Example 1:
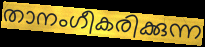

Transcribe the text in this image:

താനംഗീകരിക്കുന്ന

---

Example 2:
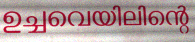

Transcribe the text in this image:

ഉച്ചവെയിലിന്റെ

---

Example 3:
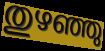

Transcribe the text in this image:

തുഴഞ്ഞു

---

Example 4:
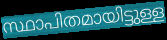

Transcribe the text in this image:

സ്ഥാപിതമായിട്ടുള്ള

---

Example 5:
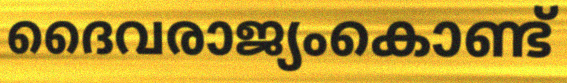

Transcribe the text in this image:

ദൈവരാജ്യംകൊണ്ട്